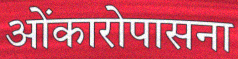
ओंकारोपासना